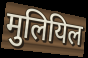
मुलियिल